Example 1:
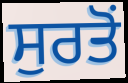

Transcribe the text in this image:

ਸੁਰਤੋਂ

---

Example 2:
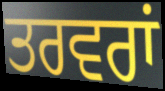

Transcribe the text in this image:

ਤਰਵਰਾਂ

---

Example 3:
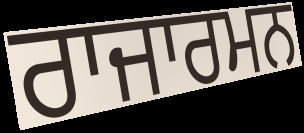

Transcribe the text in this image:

ਰਾਜਾਰਮਨ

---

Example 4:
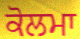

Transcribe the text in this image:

ਕੋਲਮਾ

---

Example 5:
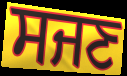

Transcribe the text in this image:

ਸਜਣ